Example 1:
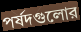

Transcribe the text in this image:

পর্ষদগুলোর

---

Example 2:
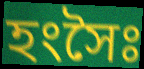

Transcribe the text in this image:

হংসৈঃ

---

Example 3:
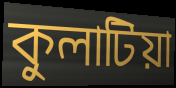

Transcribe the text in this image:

কুলাটিয়া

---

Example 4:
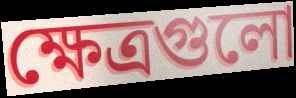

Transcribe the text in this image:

ক্ষেত্রগুলো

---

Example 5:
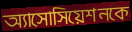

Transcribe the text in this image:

অ্যাসোসিয়েশনকে